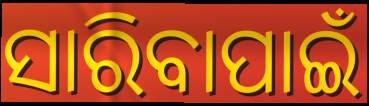
ସାରିବାପାଇଁ